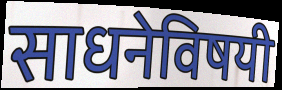
साधनेविषयी